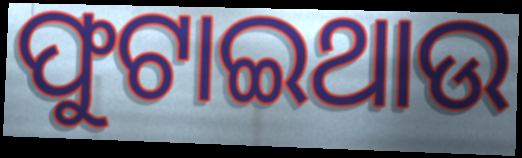
ଫୁଟାଇଥାଉ